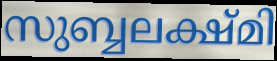
സുബ്ബലക്ഷ്മി